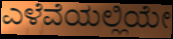
ಎಳೆವೆಯಲ್ಲಿಯೇ